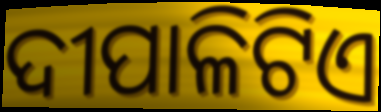
ଦୀପାଳିଟିଏ